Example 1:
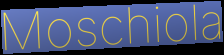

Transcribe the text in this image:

Moschiola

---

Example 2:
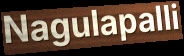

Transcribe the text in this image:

Nagulapalli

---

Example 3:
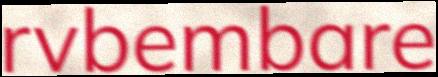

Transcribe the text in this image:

rvbembare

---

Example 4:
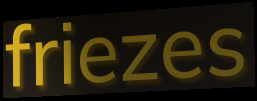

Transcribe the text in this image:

friezes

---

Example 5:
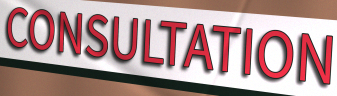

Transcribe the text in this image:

CONSULTATION